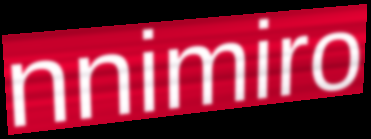
nnimiro